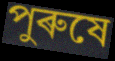
পুৰুষে